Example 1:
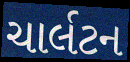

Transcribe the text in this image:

ચાર્લટન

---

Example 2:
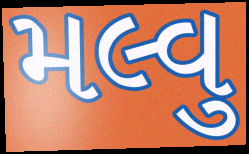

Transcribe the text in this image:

મલ્વુ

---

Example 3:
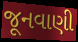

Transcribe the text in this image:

જૂનવાણી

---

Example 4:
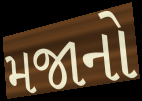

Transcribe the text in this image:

મજાનો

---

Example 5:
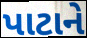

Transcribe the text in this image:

પાટાને